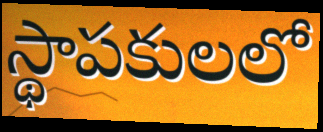
స్థాపకులలో